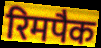
रिमपैक